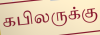
கபிலருக்கு